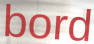
bord